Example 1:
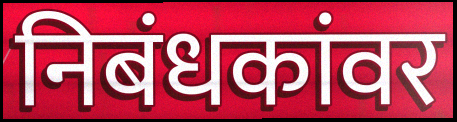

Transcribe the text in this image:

निबंधकांवर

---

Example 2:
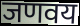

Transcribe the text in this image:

जणवय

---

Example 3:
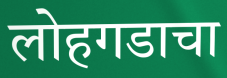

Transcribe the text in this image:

लोहगडाचा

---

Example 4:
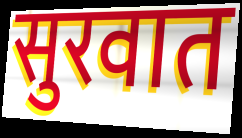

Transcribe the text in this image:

सुरवात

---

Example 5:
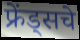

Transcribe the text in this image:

फ्रेंड्सचे